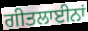
ਗੀਤਲਾਈਨਾਂ